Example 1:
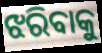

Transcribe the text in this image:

ଝରିବାକୁ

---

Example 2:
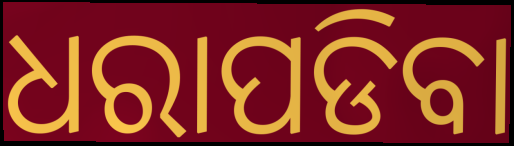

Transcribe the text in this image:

ଧରାପଡିବା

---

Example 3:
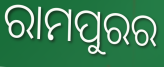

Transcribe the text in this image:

ରାମପୁରର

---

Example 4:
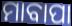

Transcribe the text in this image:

ମାବାପା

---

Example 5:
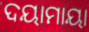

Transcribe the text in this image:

ଦୟାମାୟା